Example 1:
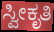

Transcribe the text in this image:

ಸ್ವೀಕೃತಿ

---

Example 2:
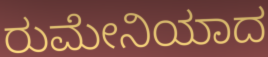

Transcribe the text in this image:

ರುಮೇನಿಯಾದ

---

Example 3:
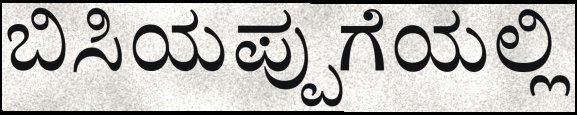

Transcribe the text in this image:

ಬಿಸಿಯಪ್ಪುಗೆಯಲ್ಲಿ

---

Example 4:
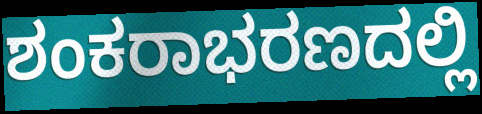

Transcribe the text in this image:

ಶಂಕರಾಭರಣದಲ್ಲಿ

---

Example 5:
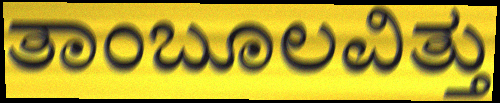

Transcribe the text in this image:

ತಾಂಬೂಲವಿತ್ತು